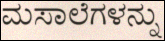
ಮಸಾಲೆಗಳನ್ನು